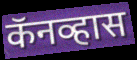
कॅनव्हास